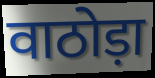
वाठोड़ा